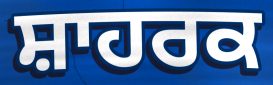
ਸ਼ਾਹਰਕ